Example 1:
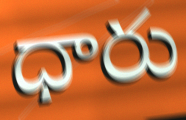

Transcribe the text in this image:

ధారు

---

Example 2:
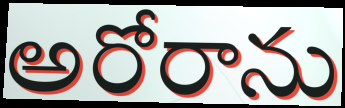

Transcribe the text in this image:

అరోరాను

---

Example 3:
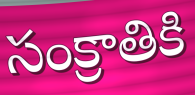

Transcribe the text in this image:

సంక్రాతికి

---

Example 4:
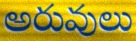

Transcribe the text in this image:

అరువులు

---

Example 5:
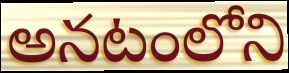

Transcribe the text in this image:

అనటంలోని